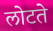
लोटते